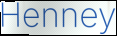
Henney